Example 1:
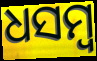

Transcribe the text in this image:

ଧସମ୍ବ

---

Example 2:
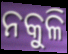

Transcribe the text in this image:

ନକୁଳି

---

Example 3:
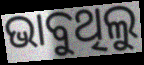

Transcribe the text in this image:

ଭାବୁଥିଲୁ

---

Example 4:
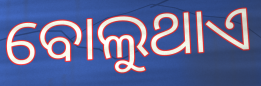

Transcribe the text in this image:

ବୋଲୁଥାଏ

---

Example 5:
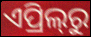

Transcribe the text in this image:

ଏପ୍ରିଲ୍‌ରୁ